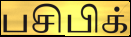
பசிபிக்